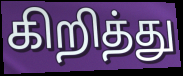
கிறித்து